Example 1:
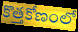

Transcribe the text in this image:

కొత్తకోణంలో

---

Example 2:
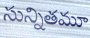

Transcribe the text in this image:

సున్నితమూ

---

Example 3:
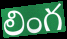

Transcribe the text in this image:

లింగ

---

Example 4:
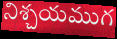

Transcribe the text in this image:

నిశ్చయముగ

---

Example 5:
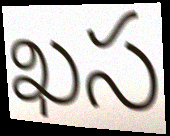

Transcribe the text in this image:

ఖస